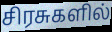
சிரசுகளில்